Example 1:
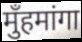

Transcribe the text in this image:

मुँहमांगा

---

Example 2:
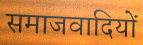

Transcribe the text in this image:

समाजवादियों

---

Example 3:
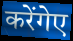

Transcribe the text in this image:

करेंगेए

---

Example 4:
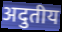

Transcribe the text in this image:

अदुतीय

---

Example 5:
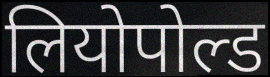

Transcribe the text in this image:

लियोपोल्ड